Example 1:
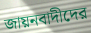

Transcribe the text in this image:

জায়নবাদীদের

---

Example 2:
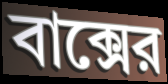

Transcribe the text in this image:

বাক্সের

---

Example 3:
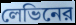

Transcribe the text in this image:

লেভিনের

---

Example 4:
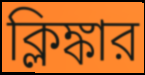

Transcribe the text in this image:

ক্লিঙ্কার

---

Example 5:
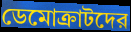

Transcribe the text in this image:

ডেমোক্রাটদের